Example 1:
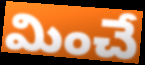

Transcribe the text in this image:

మించే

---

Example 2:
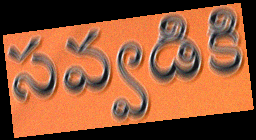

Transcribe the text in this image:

సవ్వడికి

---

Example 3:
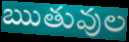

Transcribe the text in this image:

ఋతువుల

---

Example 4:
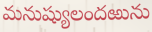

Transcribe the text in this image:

మనుష్యులందఱును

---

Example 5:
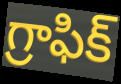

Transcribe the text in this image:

గ్రాఫిక్